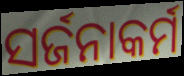
ସର୍ଜନାକର୍ମ